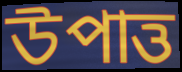
উপাত্ত